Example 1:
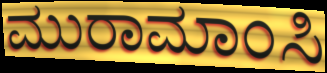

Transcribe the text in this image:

ಮುರಾಮಾಂಸಿ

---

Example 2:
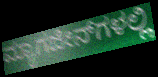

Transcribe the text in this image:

ಮ್ಯಾಗಜೀನ್‌ಗಳಲ್ಲಿ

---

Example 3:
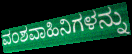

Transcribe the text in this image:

ವಂಶವಾಹಿನಿಗಳನ್ನು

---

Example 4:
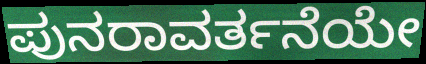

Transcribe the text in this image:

ಪುನರಾವರ್ತನೆಯೇ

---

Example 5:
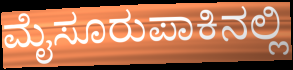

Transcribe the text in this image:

ಮೈಸೂರುಪಾಕಿನಲ್ಲಿ